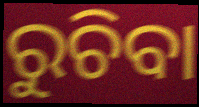
ରୁଚିବା